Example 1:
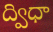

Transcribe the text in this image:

ద్విధా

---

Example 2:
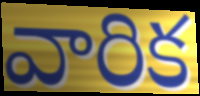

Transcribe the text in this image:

వారిక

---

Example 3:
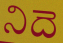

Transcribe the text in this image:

నిదె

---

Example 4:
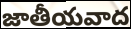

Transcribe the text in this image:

జాతీయవాద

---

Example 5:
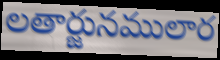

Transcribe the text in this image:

లతార్జునములార